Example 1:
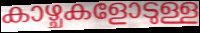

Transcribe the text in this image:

കാഴ്ചകളോടുള്ള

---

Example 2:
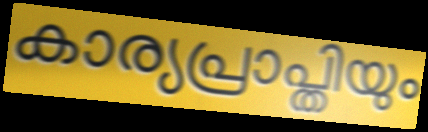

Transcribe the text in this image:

കാര്യപ്രാപ്തിയും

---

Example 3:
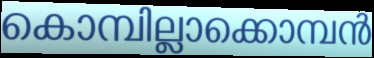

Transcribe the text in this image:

കൊമ്പില്ലാക്കൊമ്പൻ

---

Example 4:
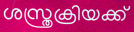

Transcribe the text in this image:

ശസ്ത്രക്രിയക്ക്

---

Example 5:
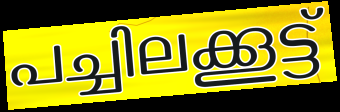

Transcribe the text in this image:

പച്ചിലക്കൂട്ട്